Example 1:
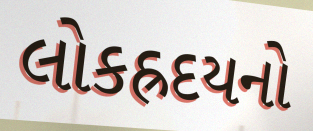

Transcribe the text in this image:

લોકહ્રદયનો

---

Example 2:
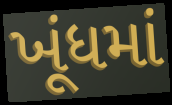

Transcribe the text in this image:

ખૂંધમાં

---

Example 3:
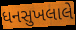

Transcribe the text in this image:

ધનસુખલાલે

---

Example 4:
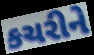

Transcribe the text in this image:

કચરીને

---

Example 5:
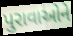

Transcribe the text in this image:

પુરાવાઓને